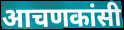
आचणकांसी